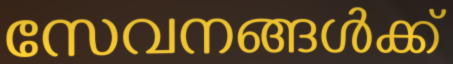
സേവനങ്ങൾക്ക്